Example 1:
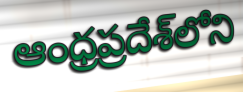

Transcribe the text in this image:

ఆంధ్రప్రదేశ్‌లోని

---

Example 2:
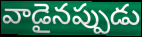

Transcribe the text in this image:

వాడైనప్పుడు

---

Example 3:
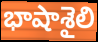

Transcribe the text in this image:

భాషాశైలి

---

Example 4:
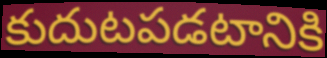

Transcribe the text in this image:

కుదుటపడటానికి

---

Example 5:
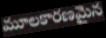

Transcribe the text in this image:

మూలకారణమైన